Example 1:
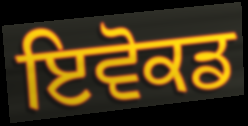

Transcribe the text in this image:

ਇਵੋਕਡ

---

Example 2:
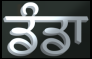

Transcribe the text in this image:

ਡੰਡਾ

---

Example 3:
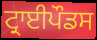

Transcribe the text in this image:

ਟ੍ਰਾਈਪੌਡਸ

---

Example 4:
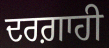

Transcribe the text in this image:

ਦਰਗ਼ਾਹੀ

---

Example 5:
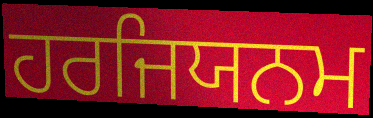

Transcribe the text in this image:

ਹਰਜਿਯਨਮ